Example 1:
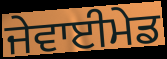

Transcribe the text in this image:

ਜੇਵਾਈਮੇਡ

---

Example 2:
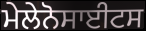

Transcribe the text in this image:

ਮੇਲੇਨੋਸਾਈਟਸ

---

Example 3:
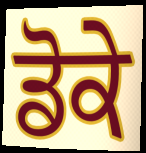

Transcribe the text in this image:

ਡੋਕੇ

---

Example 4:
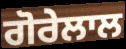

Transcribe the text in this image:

ਗੋਰੇਲਾਲ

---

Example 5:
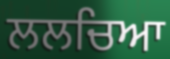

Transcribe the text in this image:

ਲਲਚਿਆ